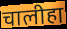
चालीहा